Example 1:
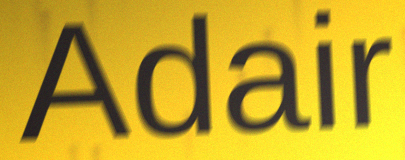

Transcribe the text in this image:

Adair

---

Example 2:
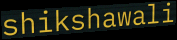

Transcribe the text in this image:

shikshawali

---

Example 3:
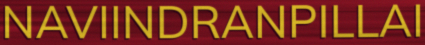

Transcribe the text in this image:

NAVIINDRANPILLAI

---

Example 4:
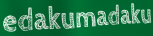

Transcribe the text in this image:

edakumadaku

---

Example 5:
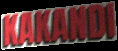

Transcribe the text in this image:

KAKANDI